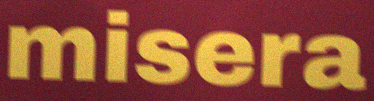
misera